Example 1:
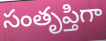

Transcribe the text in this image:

సంతృప్తిగా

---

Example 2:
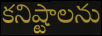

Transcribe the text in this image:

కనిష్టాలను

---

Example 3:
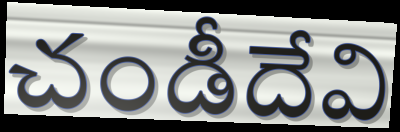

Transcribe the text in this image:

చండీదేవి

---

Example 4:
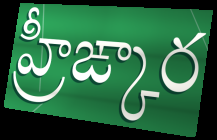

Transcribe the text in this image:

హ్రీఙ్కార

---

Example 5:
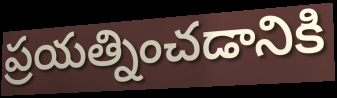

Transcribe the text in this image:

ప్రయత్నించడానికి